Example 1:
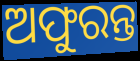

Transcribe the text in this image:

ଅଫୁରନ୍ତ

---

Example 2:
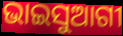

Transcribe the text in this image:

ଭାଇସୁଆଗୀ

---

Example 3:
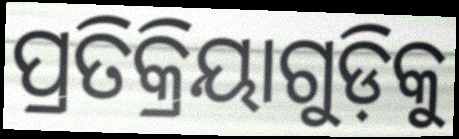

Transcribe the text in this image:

ପ୍ରତିକ୍ରିୟାଗୁଡ଼ିକୁ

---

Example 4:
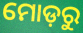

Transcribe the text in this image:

ମୋଡ଼ରୁ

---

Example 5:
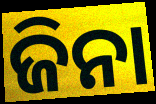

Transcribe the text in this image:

ଜିନା